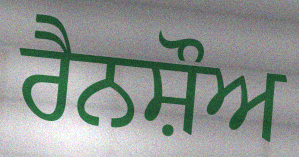
ਰੈਨਸ਼ੌਅ